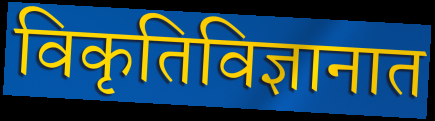
विकृतिविज्ञानात